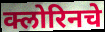
क्लोरिनचे